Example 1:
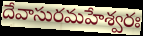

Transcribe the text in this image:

దేవాసురమహేశ్వరః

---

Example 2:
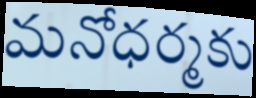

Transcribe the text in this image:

మనోధర్మకు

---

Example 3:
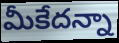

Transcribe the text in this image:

మీకేదన్నా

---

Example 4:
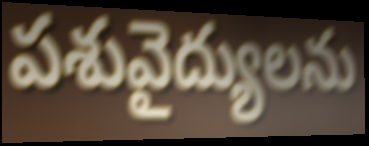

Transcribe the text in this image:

పశువైద్యులను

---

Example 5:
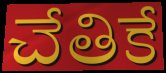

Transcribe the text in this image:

చేతికే